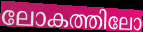
ലോകത്തിലോ